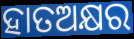
ହାତଅକ୍ଷର